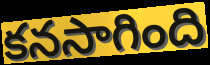
కనసాగింది